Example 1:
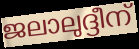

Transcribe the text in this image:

ജലാലുദ്ദീന്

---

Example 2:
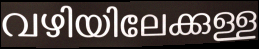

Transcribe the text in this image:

വഴിയിലേക്കുള്ള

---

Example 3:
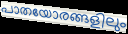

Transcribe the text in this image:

പാതയോരങ്ങളിലും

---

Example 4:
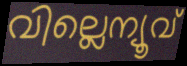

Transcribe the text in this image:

വില്ലെന്യൂവ്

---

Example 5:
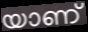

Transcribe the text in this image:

യാണ്